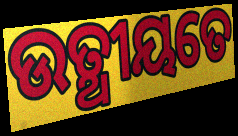
ଉତ୍ଥୀୟତେ